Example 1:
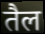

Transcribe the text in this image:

तैल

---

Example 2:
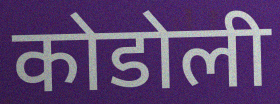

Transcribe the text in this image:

कोडोली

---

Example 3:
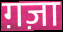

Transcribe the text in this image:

ग़ज़ा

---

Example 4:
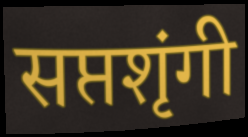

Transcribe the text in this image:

सप्तशृंगी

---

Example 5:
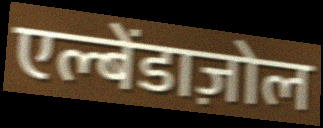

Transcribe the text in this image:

एल्बेंडाज़ोल